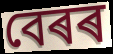
বেৰৰ